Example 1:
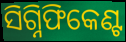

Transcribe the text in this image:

ସିଗ୍ନିଫିକେଣ୍ଟ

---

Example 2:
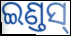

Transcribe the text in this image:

ଇଣ୍ଡସ୍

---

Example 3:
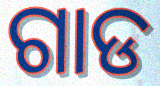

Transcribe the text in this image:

ଗାଡ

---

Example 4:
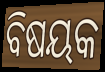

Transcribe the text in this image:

ବିଷୟକ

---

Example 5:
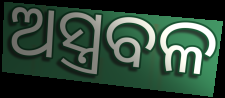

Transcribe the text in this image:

ଅସ୍ତ୍ରବଳ